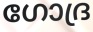
ഗോദ്ര